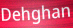
Dehghan